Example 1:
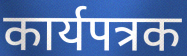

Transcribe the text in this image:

कार्यपत्रक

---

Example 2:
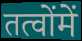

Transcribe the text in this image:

तत्वोंमें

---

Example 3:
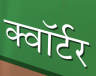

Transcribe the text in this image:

क्वॉर्टर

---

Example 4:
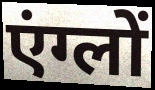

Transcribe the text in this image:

एंग्लों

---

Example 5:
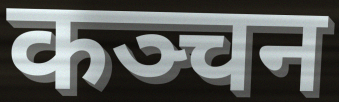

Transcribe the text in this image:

कञ्चन